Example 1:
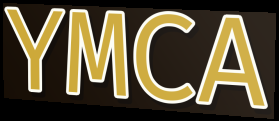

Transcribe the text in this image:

YMCA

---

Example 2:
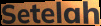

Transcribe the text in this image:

Setelah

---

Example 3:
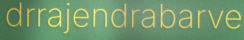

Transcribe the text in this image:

drrajendrabarve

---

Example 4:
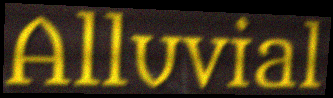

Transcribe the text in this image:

Alluvial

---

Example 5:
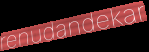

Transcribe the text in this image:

renudandekar